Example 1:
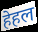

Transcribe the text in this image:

हेहल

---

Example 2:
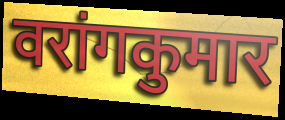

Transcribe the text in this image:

वरांगकुमार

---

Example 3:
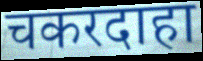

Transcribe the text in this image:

चकरदाहा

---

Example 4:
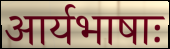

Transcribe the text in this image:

आर्यभाषाः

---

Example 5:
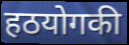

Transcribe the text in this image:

हठयोगकी